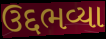
ઉદ્દભવ્યા